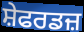
ਸ਼ੇਫਰਡਜ਼